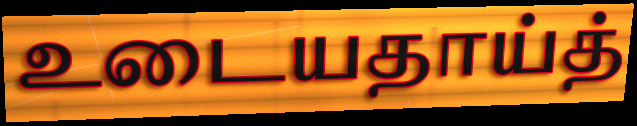
உடையதாய்த்